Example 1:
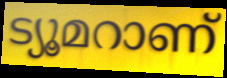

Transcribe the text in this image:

ട്യൂമറാണ്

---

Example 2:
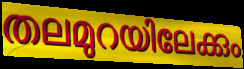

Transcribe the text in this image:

തലമുറയിലേക്കും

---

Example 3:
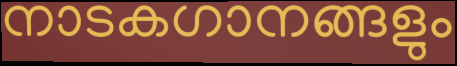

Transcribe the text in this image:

നാടകഗാനങ്ങളും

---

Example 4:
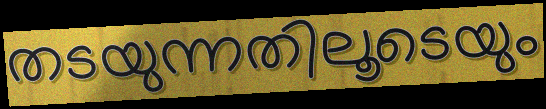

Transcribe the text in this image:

തടയുന്നതിലൂടെയും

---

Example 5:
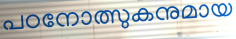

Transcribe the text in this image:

പഠനോത്സുകനുമായ